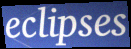
eclipses